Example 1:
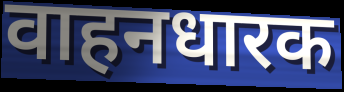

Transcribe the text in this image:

वाहनधारक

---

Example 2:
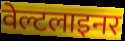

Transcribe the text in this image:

वेल्टलाइनर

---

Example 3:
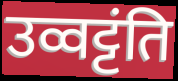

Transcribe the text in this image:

उव्वट्टंति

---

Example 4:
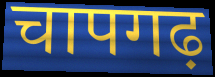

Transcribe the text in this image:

चापगढ़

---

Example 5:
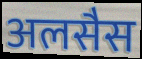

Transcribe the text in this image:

अलसैस